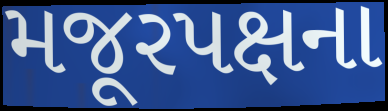
મજૂરપક્ષના